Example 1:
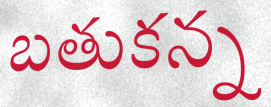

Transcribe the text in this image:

బతుకన్న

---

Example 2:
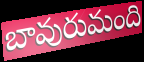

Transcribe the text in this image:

బావురుమంది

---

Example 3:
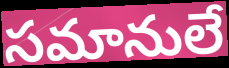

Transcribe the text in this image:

సమానులే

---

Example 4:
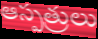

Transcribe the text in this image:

ఆస్పత్రులు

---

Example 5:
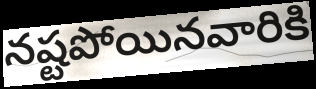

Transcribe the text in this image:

నష్టపోయినవారికి